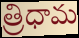
త్రిధామ